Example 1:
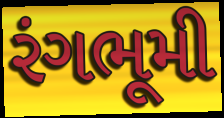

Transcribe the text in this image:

રંગભૂમી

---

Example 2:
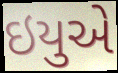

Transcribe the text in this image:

ઇયુએ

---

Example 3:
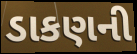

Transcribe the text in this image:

ડાકણની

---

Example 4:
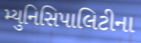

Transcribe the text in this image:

મ્યુનિસિપાલિટીના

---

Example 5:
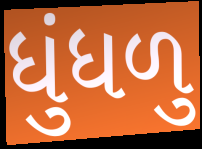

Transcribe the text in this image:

ધુંધળુ